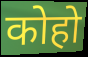
कोहो